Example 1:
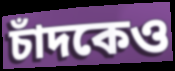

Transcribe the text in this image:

চাঁদকেও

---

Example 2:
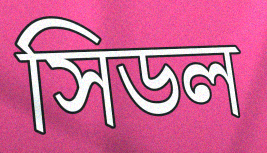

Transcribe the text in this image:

সিডল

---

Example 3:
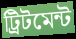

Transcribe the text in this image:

ট্রিটমেন্ট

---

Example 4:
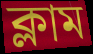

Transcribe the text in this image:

ক্লাম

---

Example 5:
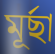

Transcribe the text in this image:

মূর্ছা